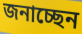
জনাচ্ছেন